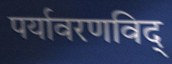
पर्यावरणविद्